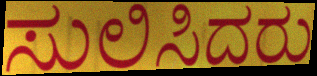
ಸುಲಿಸಿದರು